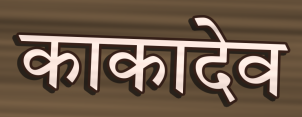
काकादेव